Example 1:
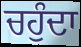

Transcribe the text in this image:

ਚਹੁੰਦਾ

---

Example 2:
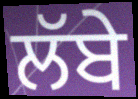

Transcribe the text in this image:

ਲੱਬੇ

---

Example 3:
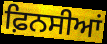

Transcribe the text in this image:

ਫ਼ਿਨਸੀਆਂ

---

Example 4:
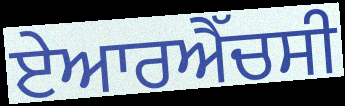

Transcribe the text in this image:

ਏਆਰਐੱਚਸੀ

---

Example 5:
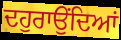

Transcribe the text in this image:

ਦਹੁਰਾਉਂਦਿਆਂ